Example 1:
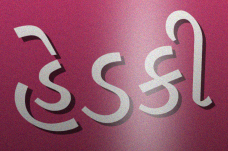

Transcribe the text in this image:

હેડકી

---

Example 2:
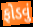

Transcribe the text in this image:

ફોડવું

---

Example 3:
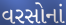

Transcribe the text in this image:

વરસોનાં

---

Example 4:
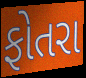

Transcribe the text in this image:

ફોતરા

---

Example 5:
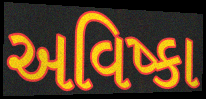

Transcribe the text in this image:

અવિષ્કા